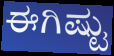
ಈಗಿಷ್ಟು